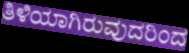
ತಿಳಿಯಾಗಿರುವುದರಿಂದ